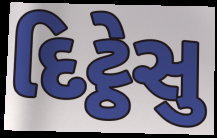
દિટ્ઠેસુ